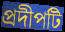
প্রদীপটি